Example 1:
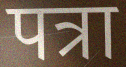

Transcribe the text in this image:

पत्रा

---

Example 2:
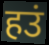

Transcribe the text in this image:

हउं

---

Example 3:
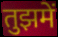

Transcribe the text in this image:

तुझमें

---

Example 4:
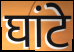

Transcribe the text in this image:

घांटे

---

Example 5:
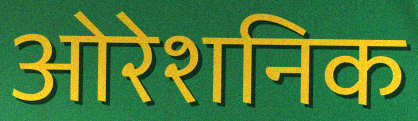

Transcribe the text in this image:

ओरेशनिक